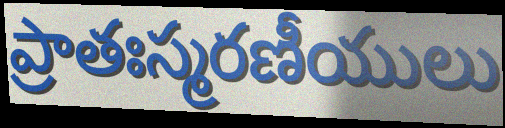
ప్రాతఃస్మరణీయులు